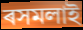
ৰসমলাই